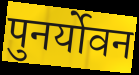
पुनर्योवन